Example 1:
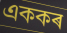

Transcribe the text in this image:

এককৰ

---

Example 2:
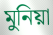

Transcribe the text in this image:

মুনিয়া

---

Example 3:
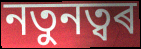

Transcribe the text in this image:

নতুনত্বৰ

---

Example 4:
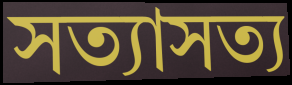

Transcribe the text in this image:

সত্যাসত্য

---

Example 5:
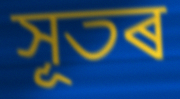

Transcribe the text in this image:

সূতৰ